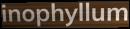
inophyllum